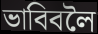
ভাবিবলৈ